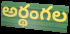
అర్థంగల